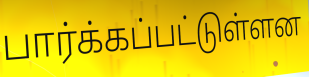
பார்க்கப்பட்டுள்ளன